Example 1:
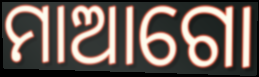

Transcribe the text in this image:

ମାଆଗୋ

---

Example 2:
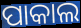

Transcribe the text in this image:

ପାକାଲ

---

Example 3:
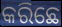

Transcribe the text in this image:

କରିଛେ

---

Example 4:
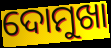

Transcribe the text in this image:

ଦୋମୁଖା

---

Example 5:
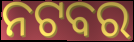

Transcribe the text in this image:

ନଟବର